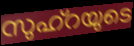
സുഹ്റയുടെ